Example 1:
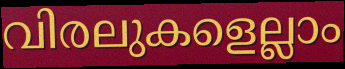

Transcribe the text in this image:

വിരലുകളെല്ലാം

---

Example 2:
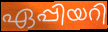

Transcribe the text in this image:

ഏപ്പിയറി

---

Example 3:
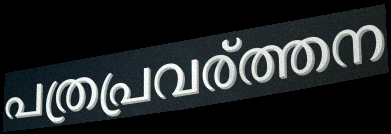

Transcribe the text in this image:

പത്രപ്രവര്ത്തന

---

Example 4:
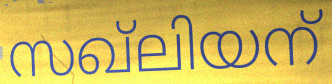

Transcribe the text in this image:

സഖ്ലിയന്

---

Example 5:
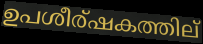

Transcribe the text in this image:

ഉപശീര്ഷകത്തില്